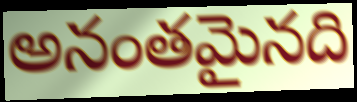
అనంతమైనది